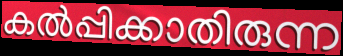
കൽപ്പിക്കാതിരുന്ന